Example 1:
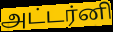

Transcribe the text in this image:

அட்டர்னி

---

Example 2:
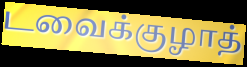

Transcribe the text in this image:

டவைக்குழாத்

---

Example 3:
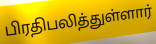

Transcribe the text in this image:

பிரதிபலித்துள்ளார்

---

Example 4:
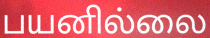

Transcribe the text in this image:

பயனில்லை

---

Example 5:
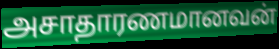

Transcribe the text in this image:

அசாதாரணமானவன்